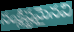
సంక్లిష్టమైనవి